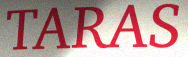
TARAS